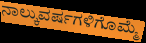
ನಾಲ್ಕುವರ್ಷಗಳಿಗೊಮ್ಮೆ